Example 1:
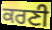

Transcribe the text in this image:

ਕਰਣੀ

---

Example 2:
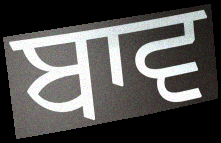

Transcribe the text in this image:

ਬਾਵ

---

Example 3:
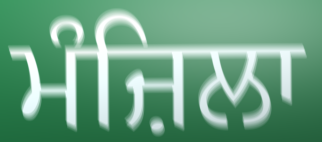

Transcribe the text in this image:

ਮੰਜ਼ਿਲਾ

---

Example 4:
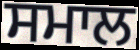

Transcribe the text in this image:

ਸਮਾਲ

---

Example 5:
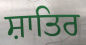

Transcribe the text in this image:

ਸ਼ਾਤਿਰ